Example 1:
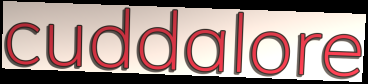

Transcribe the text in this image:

cuddalore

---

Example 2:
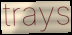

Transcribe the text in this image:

trays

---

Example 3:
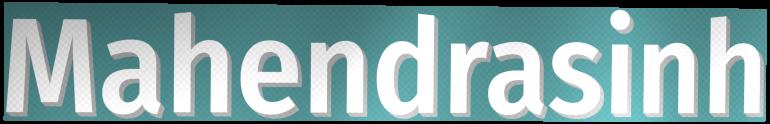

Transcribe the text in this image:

Mahendrasinh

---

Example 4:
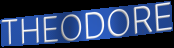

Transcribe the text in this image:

THEODORE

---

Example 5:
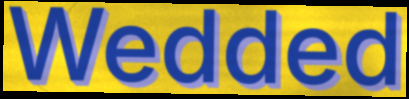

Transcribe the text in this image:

Wedded